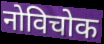
नोविचोक